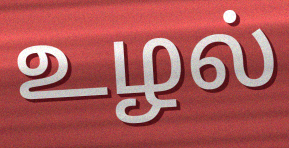
உழல்